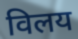
विलय